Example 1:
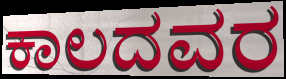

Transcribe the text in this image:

ಕಾಲದವರ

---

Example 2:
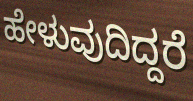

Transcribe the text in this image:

ಹೇಳುವುದಿದ್ದರೆ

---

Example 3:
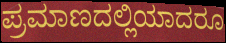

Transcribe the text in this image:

ಪ್ರಮಾಣದಲ್ಲಿಯಾದರೂ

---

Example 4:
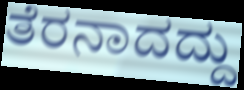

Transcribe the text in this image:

ತೆರನಾದದ್ದು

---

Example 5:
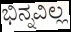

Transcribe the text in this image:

ಭಿನ್ನವಿಲ್ಲ